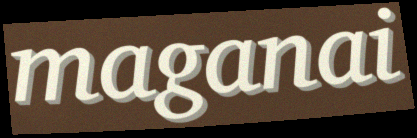
maganai